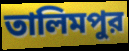
তালিমপুর